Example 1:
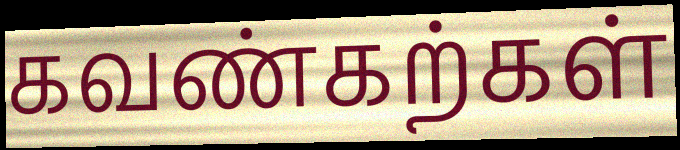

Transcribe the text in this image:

கவண்கற்கள்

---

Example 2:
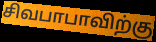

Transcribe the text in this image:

சிவபாபாவிற்கு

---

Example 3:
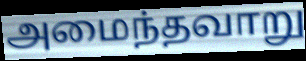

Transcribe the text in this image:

அமைந்தவாறு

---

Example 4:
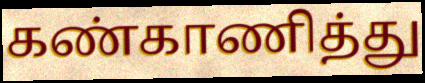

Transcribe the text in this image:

கண்காணித்து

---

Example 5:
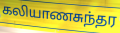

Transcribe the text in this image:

கலியாணசுந்தர